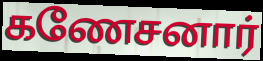
கணேசனார்